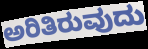
ಅರಿತಿರುವುದು